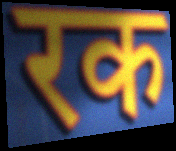
रक